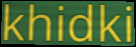
khidki